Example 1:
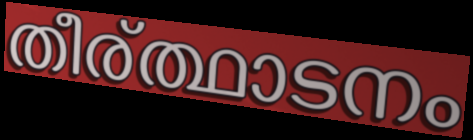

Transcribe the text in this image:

തീര്ത്ഥാടനം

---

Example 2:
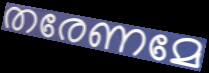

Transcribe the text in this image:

തരേണമേ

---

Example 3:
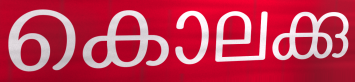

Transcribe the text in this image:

കൊലക്കു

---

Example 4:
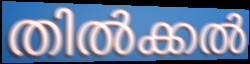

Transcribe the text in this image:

തിൽക്കൽ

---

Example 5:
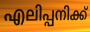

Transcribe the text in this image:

എലിപ്പനിക്ക്